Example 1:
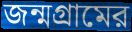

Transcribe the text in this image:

জন্মগ্রামের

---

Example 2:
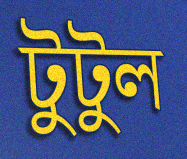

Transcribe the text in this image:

টুটুল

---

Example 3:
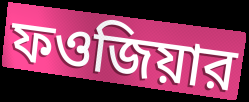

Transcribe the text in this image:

ফওজিয়ার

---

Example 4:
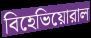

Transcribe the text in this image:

বিহেভিয়োরাল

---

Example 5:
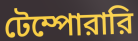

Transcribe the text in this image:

টেম্পোরারি